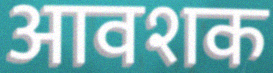
आवशक